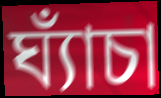
ঘ্যাঁচা